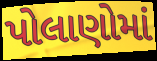
પોલાણોમાં